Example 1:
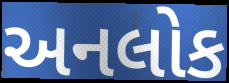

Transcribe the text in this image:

અનલોક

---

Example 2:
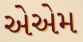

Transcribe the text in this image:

એએમ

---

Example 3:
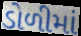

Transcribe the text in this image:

ડોળીમાં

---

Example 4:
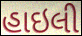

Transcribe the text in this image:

હાઇલી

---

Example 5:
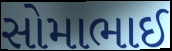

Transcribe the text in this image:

સોમાભાઈ